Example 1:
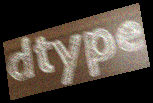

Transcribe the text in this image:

dtype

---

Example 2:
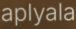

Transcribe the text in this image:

aplyala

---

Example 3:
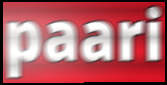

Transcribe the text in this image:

paari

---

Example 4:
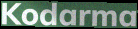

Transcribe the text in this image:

Kodarma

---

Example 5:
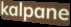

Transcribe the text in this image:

kalpane